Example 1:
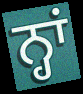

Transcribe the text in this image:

ਨ੍ਹਾਂ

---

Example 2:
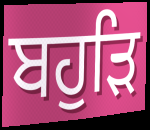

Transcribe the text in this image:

ਬਹੁੜਿ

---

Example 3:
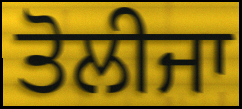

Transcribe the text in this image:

ਤੋਲੀਜਾ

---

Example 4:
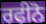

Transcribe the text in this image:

ਰਫੀਨੋ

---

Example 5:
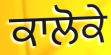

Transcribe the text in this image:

ਕਾਲੋਕੇ